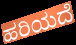
ಹರಿಯದೆ